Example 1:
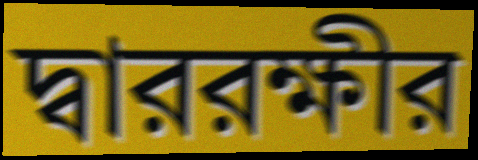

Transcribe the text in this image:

দ্বাররক্ষীর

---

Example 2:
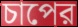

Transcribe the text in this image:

চাপের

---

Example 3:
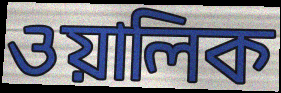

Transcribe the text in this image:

ওয়ালিক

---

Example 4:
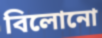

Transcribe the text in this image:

বিলোনো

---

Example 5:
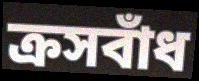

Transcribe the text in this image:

ক্রসবাঁধ